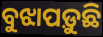
ବୁଝାପଡ଼ୁଛି